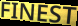
FINEST